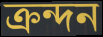
ক্রন্দন